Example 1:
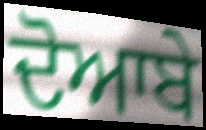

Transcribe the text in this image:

ਦੋਆਬੇ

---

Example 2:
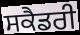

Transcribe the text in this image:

ਸਕੈਡਰੀ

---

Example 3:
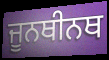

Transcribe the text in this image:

ਜੂਨਥੀਨਥ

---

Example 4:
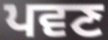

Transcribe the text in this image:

ਪਵਣ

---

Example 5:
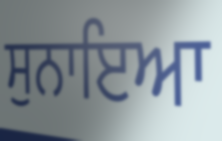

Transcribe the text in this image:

ਸੁਨਾਇਆ